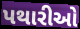
પથારીઓ